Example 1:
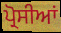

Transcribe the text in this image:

ਪ੍ਰੋਸੀਆਂ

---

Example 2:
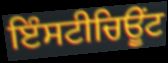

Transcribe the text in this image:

ਇੰਸਟੀਚਿਊਂਟ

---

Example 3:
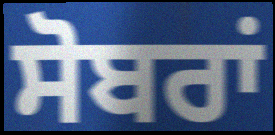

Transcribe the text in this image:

ਸੋਬਰਾਂ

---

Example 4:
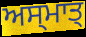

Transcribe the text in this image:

ਅਸ੍ਮਾਤ੍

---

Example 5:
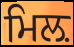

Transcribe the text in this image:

ਮਿਲ਼